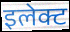
इलेक्ट